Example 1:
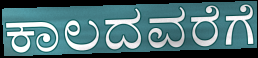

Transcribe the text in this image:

ಕಾಲದವರೆಗೆ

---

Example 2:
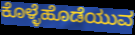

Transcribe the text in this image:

ಕೊಳ್ಳೆಹೊಡೆಯುವ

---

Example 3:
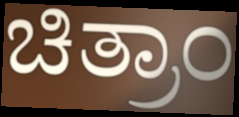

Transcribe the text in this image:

ಚಿತ್ರಾಂ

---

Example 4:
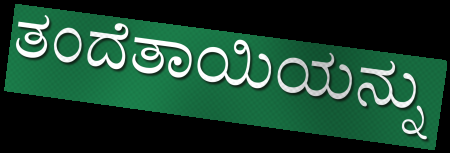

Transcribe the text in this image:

ತಂದೆತಾಯಿಯನ್ನು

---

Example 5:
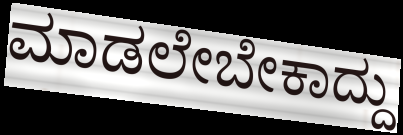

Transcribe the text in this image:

ಮಾಡಲೇಬೇಕಾದ್ದು